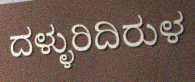
ದಳ್ಳುರಿದಿರುಳ